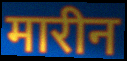
मारीन